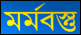
মৰ্মবস্তু